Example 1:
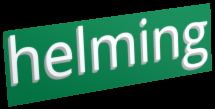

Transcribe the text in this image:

helming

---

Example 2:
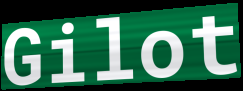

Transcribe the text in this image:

Gilot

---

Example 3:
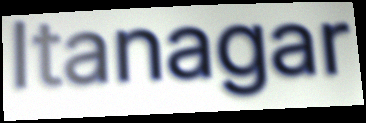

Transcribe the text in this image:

Itanagar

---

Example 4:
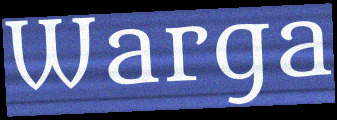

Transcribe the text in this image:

Warga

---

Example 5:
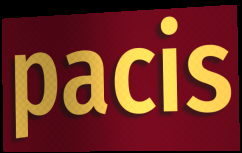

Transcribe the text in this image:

pacis